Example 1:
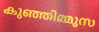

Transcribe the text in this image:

കുഞ്ഞിമ്മൂസ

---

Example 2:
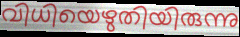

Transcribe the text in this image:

വിധിയെഴുതിയിരുന്നു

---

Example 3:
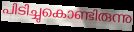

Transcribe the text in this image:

പിടിച്ചുകൊണ്ടിരുന്നു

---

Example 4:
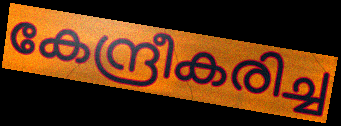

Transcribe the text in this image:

കേന്ദ്രീകരിച്ച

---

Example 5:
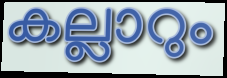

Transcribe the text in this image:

കല്ലാറും